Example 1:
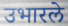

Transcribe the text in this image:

उभारले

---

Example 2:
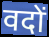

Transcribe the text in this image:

वदों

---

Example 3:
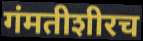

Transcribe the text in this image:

गंमतीशीरच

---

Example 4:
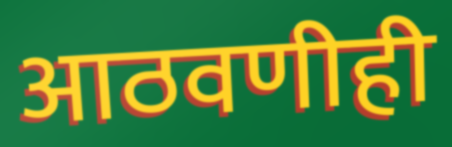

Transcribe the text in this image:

आठवणीही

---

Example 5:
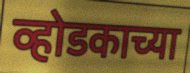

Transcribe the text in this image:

व्होडकाच्या